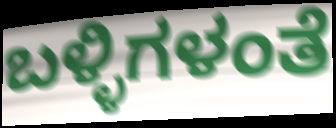
ಬಳ್ಳಿಗಳಂತೆ